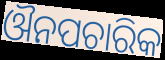
ଔନପଚାରିକ